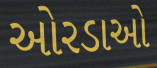
ઓરડાઓ